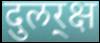
दुलर्क्ष